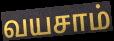
வயசாம்